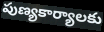
పుణ్యకార్యాలకు